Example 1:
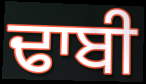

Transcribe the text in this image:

ਢਾਬੀ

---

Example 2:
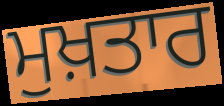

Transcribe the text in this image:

ਮੁਖ਼ਤਾਰ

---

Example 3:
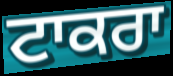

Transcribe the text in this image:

ਟਾਕਰਾ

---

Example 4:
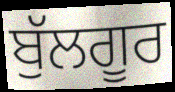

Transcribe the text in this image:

ਬੁੱਲਗੂਰ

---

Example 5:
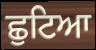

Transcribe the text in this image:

ਛੁਟਿਆ